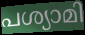
പശ്യാമി